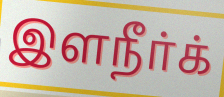
இளநீர்க்